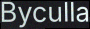
Byculla